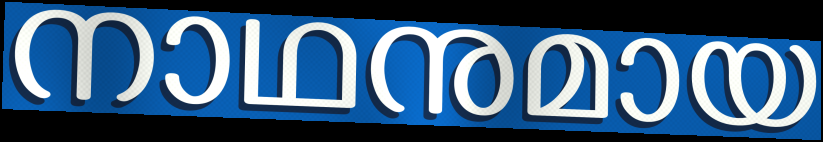
നാഥനുമായ